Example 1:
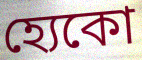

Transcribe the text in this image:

হ্যেকো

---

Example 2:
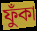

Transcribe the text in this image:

ফুঁকা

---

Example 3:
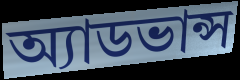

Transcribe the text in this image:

অ্যাডভান্স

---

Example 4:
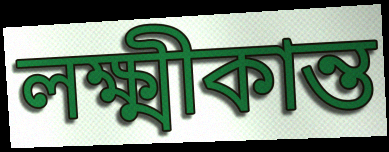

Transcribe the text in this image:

লক্ষ্মীকান্ত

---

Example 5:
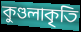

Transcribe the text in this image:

কুণ্ডলাকৃতি